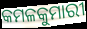
କମଳକୁମାରୀ